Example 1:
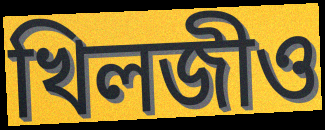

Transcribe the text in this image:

খিলজীও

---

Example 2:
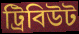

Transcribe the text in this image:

ট্রিবিউট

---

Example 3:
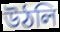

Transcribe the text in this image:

উঠলি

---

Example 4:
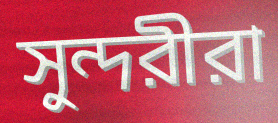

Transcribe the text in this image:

সুন্দরীরা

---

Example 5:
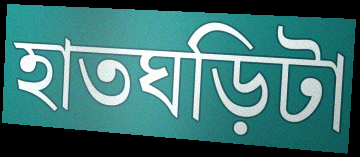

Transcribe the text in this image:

হাতঘড়িটা